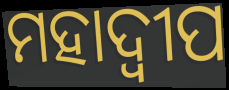
ମହାଦ୍ୱୀପ